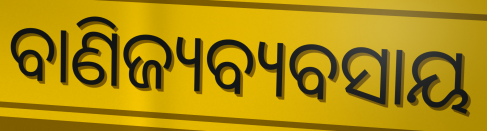
ବାଣିଜ୍ୟବ୍ୟବସାୟ